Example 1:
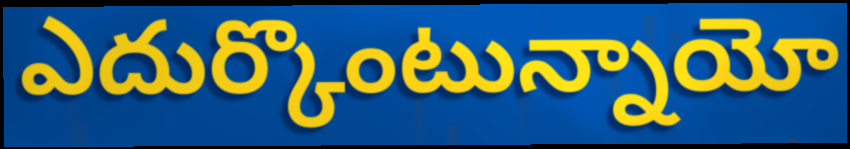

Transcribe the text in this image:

ఎదుర్కొంటున్నాయో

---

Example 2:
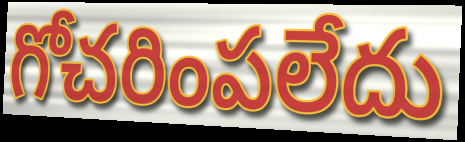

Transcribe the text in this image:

గోచరింపలేదు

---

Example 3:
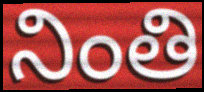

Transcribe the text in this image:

నింతి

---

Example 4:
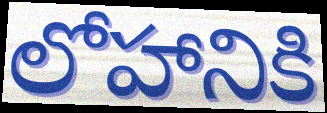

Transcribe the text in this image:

లోహానికి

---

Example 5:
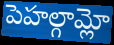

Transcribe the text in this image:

పెహల్గామ్లో